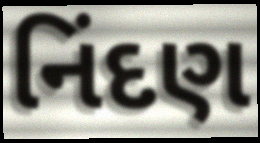
નિંદણ